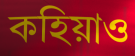
কহিয়াও